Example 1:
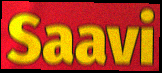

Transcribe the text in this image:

Saavi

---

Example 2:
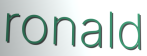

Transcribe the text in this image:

ronald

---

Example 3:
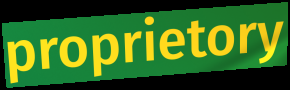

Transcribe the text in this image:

proprietory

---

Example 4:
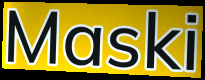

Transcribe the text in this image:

Maski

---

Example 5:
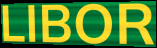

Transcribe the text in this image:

LIBOR